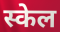
स्केल